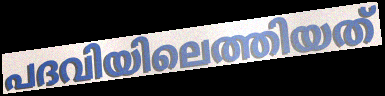
പദവിയിലെത്തിയത്